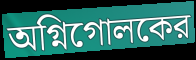
অগ্নিগোলকের